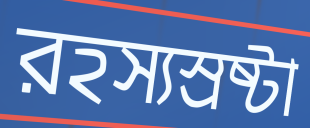
রহস্যস্রষ্টা